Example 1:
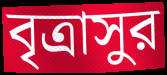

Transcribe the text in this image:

বৃত্রাসুর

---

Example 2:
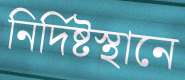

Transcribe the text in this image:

নির্দিষ্টস্থানে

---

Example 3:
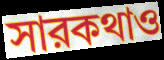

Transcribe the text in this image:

সারকথাও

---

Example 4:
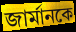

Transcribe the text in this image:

জার্মানকে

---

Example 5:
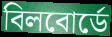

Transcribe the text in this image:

বিলবোর্ডে